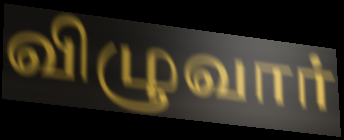
விழுவார்